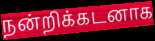
நன்றிக்கடனாக